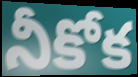
నీకోక